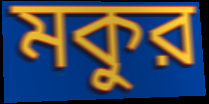
মকুর